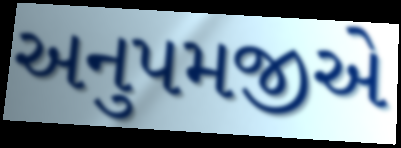
અનુપમજીએ